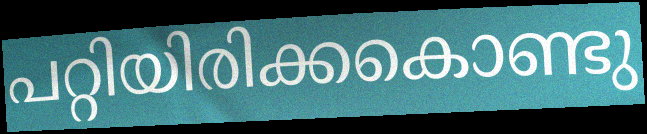
പറ്റിയിരിക്കകൊണ്ടു